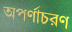
অপর্ণাচরণ